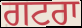
ਗਟਰਾ